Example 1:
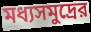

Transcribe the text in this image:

মধ্যসমুদ্রের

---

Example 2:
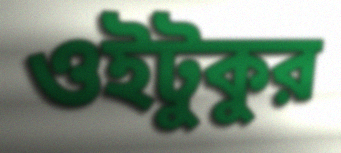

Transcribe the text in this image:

ওইটুকুর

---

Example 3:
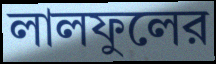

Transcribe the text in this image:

লালফুলের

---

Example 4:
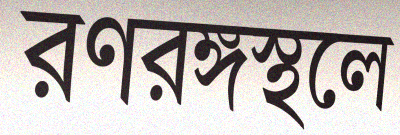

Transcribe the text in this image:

রণরঙ্গস্থলে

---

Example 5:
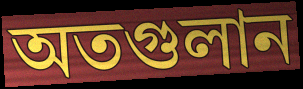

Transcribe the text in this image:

অতগুলান